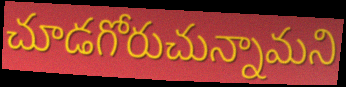
చూడగోరుచున్నామని